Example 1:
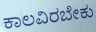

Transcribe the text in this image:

ಕಾಲವಿರಬೇಕು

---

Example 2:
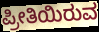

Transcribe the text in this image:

ಪ್ರೀತಿಯಿರುವ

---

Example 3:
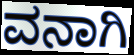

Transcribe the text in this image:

ವನಾಗಿ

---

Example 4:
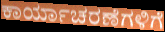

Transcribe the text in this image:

ಕಾರ್ಯಾಚರಣೆಗಳಿಗೆ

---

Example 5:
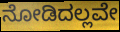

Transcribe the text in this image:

ನೋಡಿದಲ್ಲವೇ